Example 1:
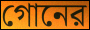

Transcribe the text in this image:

গোনের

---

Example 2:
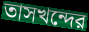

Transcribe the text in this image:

তাসখন্দের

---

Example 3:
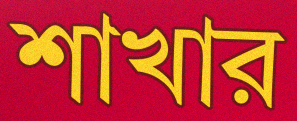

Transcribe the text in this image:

শাখার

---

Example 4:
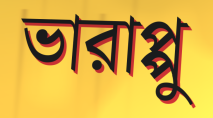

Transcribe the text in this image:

ভারাপ্পু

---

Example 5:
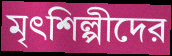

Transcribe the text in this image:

মৃৎশিল্পীদের